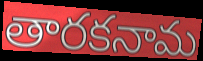
తారకనామ